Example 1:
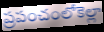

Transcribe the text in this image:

ప్రపంచంలోకెల్లా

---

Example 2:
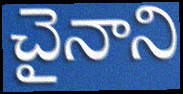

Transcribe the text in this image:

చైనాని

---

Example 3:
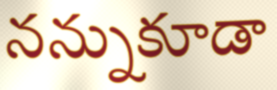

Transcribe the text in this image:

నన్నుకూడా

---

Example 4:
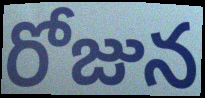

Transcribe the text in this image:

రోజున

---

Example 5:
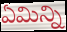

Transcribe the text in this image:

ఏమిన్ని